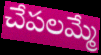
చేపలమ్మే